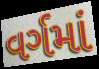
વર્ગમાં